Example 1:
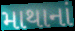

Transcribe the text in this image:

માથાનાં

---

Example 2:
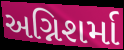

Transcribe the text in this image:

અગ્નિશર્મા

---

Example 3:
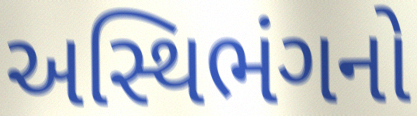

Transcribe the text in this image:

અસ્થિભંગનો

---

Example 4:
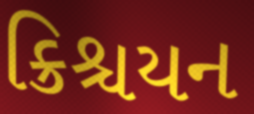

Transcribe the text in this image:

ક્રિશ્ચયન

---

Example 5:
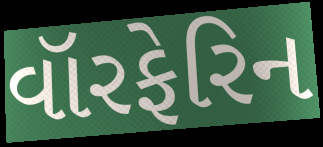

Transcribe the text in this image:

વૉરફેરિન